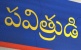
పవిత్రుడి